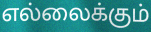
எல்லைக்கும்